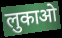
लुकाओ